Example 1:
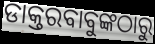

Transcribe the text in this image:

ଡାକ୍ତରବାବୁଙ୍କଠାରୁ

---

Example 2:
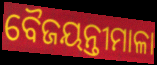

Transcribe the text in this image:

ବୈଜୟନ୍ତୀମାଳା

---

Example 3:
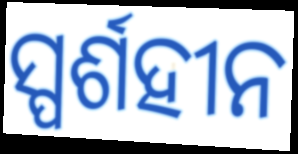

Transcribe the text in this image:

ସ୍ପର୍ଶହୀନ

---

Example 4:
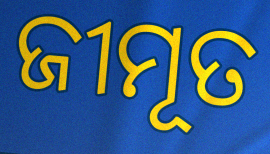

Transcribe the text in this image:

ଜୀମୂତ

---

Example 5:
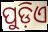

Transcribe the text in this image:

ପୁଡ଼ିଏ